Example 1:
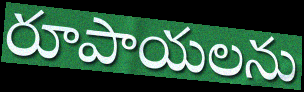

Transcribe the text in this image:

రూపాయలను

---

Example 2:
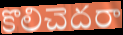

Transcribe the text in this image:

కొలిచెదరా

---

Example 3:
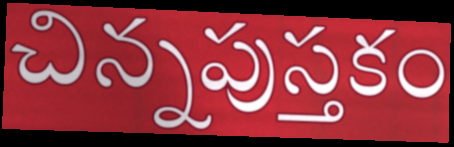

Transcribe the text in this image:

చిన్నపుస్తకం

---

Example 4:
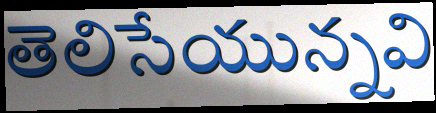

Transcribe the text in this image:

తెలిసేయున్నవి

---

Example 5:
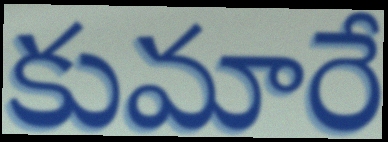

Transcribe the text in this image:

కుమారే